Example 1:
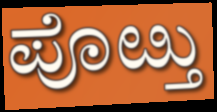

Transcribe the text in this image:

ಪೊೞ್ತು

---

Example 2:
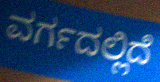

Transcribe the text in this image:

ವರ್ಗದಲ್ಲಿದೆ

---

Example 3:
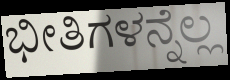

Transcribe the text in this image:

ಭೀತಿಗಳನ್ನೆಲ್ಲ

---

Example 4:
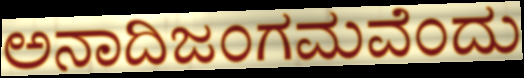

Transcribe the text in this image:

ಅನಾದಿಜಂಗಮವೆಂದು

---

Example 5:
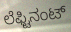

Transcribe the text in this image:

ಲೆಫ್ಟಿನಂಟ್